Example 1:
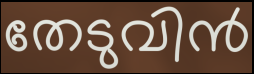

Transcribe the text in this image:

തേടുവിൻ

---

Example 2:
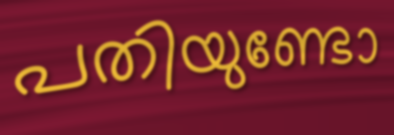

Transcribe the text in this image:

പതിയുണ്ടോ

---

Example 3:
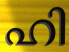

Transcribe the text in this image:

ഹി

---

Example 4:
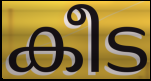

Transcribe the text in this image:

കീട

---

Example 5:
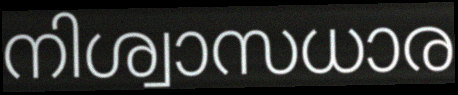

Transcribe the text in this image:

നിശ്വാസധാര